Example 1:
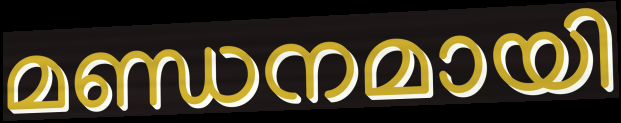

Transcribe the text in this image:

മണ്ഡനമായി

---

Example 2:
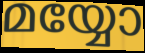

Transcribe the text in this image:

മയ്യോ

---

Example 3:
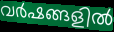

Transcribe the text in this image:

വർഷങ്ങളിൽ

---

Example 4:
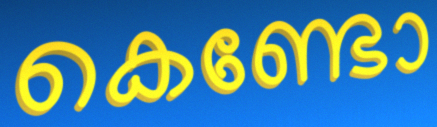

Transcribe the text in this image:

കെണ്ടോ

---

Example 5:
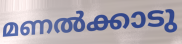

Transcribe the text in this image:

മണൽക്കാടു